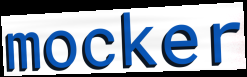
mocker